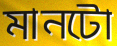
মানটো